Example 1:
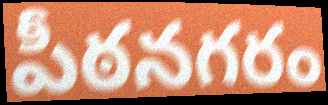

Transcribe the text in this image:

పీఠనగరం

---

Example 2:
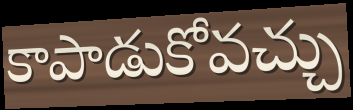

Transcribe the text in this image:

కాపాడుకోవచ్చు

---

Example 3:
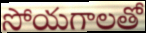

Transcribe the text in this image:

సోయగాలతో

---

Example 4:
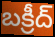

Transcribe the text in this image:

బక్రీద్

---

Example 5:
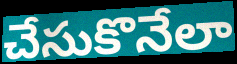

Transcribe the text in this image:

చేసుకొనేలా